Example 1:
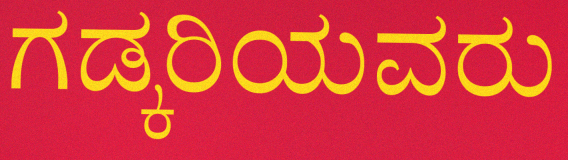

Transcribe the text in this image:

ಗಡ್ಕರಿಯವರು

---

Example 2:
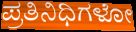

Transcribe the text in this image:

ಪ್ರತಿನಿಧಿಗಳೋ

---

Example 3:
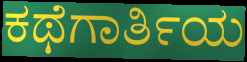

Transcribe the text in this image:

ಕಥೆಗಾರ್ತಿಯ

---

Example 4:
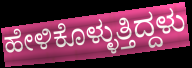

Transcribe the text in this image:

ಹೇಳಿಕೊಳ್ಳುತ್ತಿದ್ದಳು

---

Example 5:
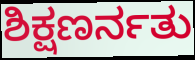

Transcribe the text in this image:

ಶಿಕ್ಷಣರ್ನತು